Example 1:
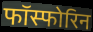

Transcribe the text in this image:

फॉस्फोरिन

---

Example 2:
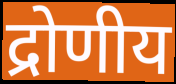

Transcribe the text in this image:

द्रोणीय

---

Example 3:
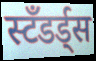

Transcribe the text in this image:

स्टँडर्ड्स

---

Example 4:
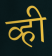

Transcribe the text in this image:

व्ही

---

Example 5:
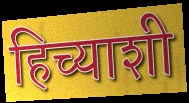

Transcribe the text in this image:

हिच्याशी